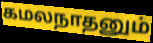
கமலநாதனும்